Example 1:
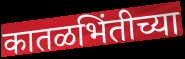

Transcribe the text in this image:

कातळभिंतीच्या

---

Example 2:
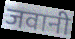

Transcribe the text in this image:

जवानी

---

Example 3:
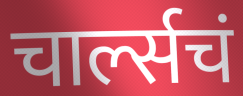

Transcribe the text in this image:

चार्ल्सचं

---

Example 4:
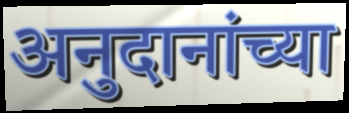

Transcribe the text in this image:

अनुदानांच्या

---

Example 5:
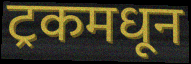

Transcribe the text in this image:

ट्रकमधून